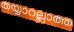
തയ്യാറല്ലാത്ത